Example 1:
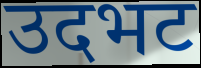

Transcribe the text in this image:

उदभट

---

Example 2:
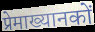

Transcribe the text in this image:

प्रेमाख्यानकों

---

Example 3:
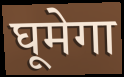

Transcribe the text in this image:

घूमेगा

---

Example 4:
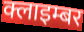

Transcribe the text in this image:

क्लाइम्बर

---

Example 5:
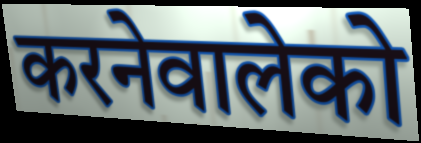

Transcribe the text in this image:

करनेवालेको